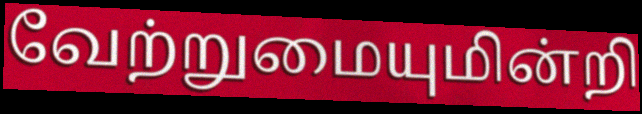
வேற்றுமையுமின்றி